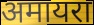
अमायरा